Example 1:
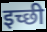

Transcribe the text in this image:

इच्छी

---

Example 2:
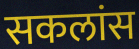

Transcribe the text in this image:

सकलांस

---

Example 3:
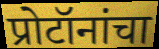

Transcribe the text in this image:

प्रोटॉनांचा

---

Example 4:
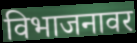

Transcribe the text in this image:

विभाजनावर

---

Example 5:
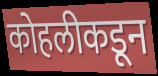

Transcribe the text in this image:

कोहलीकडून